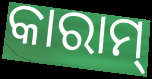
କାରାମ୍